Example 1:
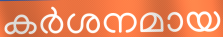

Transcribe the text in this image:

കർശനമായ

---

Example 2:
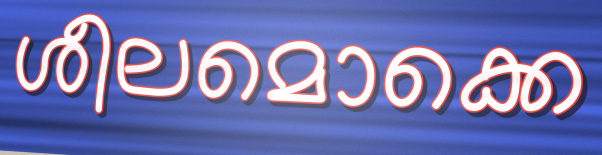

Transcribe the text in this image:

ശീലമൊക്കെ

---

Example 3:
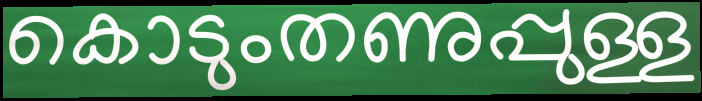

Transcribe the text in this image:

കൊടുംതണുപ്പുള്ള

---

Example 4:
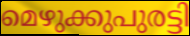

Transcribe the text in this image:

മെഴുക്കുപുരട്ടി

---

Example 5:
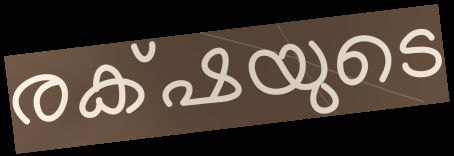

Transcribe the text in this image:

രക്‌ഷയുടെ